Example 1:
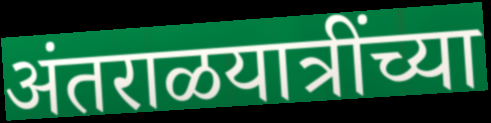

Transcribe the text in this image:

अंतराळयात्रींच्या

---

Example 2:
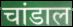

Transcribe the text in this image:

चांडाल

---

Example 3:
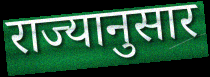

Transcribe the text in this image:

राज्यानुसार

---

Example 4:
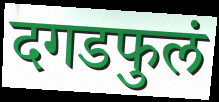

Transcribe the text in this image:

दगडफुलं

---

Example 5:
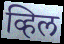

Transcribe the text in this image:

व्हिल